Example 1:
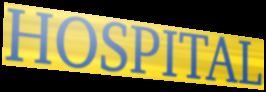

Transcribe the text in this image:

HOSPITAL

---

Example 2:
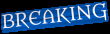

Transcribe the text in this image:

BREAKING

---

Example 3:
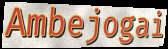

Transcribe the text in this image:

Ambejogai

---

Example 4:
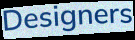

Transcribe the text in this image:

Designers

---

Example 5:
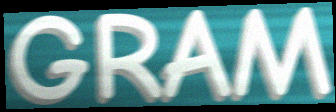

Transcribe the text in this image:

GRAM